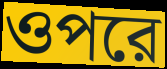
ওপরে